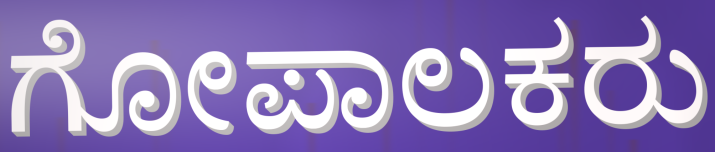
ಗೋಪಾಲಕರು